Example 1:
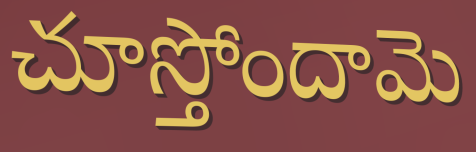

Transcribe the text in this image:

చూస్తోందామె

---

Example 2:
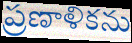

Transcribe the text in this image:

ప్రణాళికను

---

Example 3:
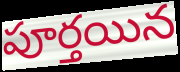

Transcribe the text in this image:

పూర్తయిన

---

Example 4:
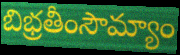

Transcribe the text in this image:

బిభ్రతీంసౌమ్యాం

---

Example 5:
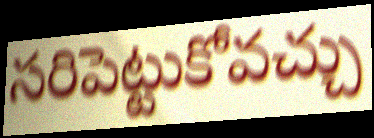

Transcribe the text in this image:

సరిపెట్టుకోవచ్చు